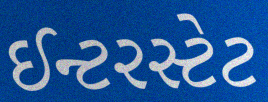
ઈન્ટરસ્ટેટ